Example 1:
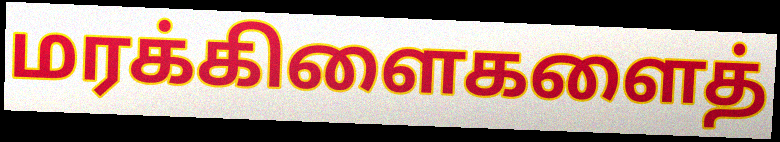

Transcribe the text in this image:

மரக்கிளைகளைத்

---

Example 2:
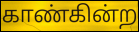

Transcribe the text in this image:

காண்கின்ற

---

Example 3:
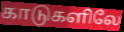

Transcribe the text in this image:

காடுகளிலே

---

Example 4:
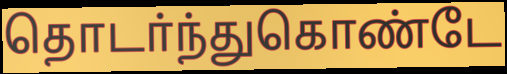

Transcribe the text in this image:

தொடர்ந்துகொண்டே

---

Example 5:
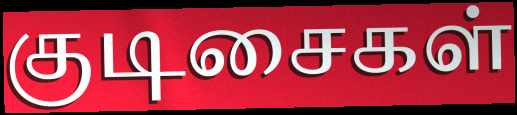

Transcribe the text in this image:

குடிசைகள்